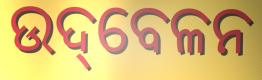
ଉଦ୍‌ବେଳନ